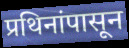
प्रथिनांपासून